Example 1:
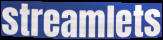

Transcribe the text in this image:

streamlets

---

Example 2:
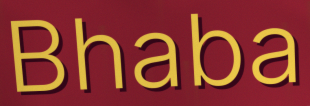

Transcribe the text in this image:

Bhaba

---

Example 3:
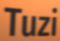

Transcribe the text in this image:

Tuzi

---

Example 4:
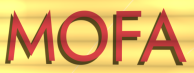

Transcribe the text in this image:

MOFA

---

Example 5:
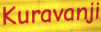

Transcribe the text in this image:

Kuravanji